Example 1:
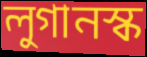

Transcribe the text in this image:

লুগানস্ক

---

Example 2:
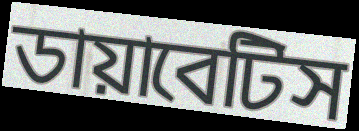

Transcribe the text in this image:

ডায়াবেটিস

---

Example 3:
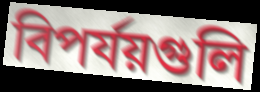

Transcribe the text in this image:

বিপর্যয়গুলি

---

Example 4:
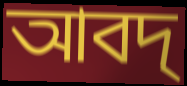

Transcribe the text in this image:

আবদ্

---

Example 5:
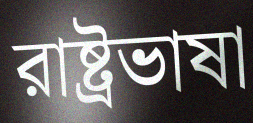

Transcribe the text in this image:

রাষ্ট্রভাষা